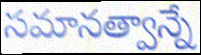
సమానత్వాన్నే